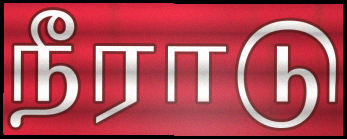
நீராடு